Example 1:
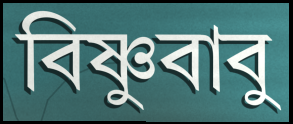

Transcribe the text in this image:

বিষ্ণুবাবু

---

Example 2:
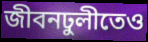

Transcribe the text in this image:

জীবনঢুলীতেও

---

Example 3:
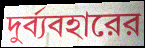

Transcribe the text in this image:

দুর্ব্যবহারের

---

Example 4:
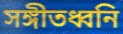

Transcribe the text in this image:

সঙ্গীতধ্বনি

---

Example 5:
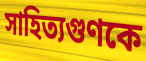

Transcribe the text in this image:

সাহিত্যগুণকে